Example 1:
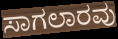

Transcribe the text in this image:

ಸಾಗಲಾರವು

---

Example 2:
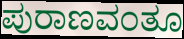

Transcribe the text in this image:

ಪುರಾಣವಂತೂ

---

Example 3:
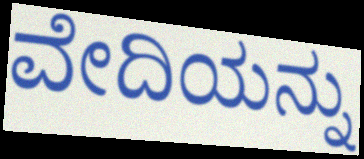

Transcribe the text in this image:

ವೇದಿಯನ್ನು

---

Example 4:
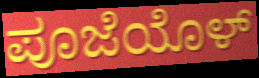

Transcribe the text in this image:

ಪೂಜೆಯೊಳ್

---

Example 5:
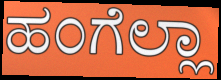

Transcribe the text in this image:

ಹಂಗೆಲ್ಲಾ